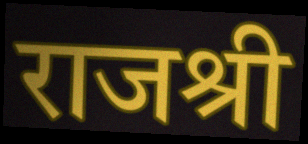
राजश्री